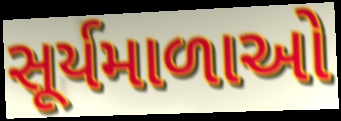
સૂર્યમાળાઓ